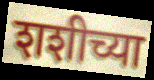
शशीच्या